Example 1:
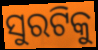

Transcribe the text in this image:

ସୁରଟିକୁ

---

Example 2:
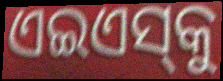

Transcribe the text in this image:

ଏଇଏସ୍‌କୁ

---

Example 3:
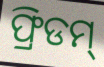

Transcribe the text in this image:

ଫ୍ରିଡମ୍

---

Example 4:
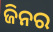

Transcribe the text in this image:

ଜିନର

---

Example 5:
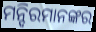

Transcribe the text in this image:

ମନ୍ଦିରମାନଙ୍କର